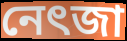
নেৎজা